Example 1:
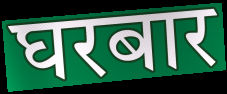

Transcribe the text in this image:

घरबार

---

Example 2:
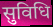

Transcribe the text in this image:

सुविधि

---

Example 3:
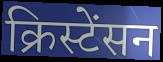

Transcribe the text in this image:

क्रिस्टेंसन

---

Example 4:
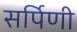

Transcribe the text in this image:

सर्पिणी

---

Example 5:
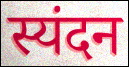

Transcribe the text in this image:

स्यंदन